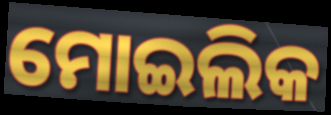
ମୋଇଲିକ